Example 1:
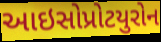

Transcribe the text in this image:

આઇસોપ્રોટયુરોન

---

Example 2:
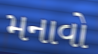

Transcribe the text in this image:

મનાવો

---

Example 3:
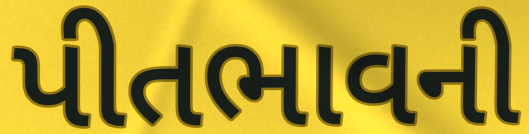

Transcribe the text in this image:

પીતભાવની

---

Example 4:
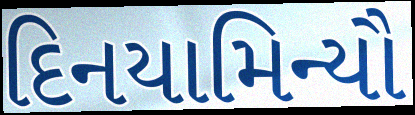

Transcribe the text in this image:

દિનયામિન્યૌ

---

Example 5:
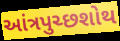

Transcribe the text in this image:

આંત્રપુચ્છશોથ